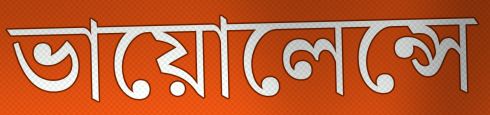
ভায়োলেন্সে